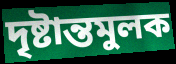
দৃষ্টান্তমুলক